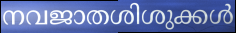
നവജാതശിശുക്കൾ